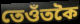
তেওঁতকৈ